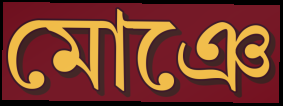
মোঞে